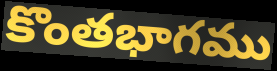
కొంతభాగము